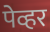
पेव्हर